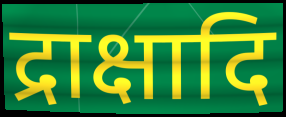
द्राक्षादि